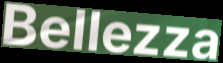
Bellezza